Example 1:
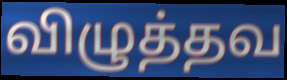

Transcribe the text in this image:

விழுத்தவ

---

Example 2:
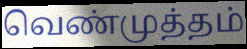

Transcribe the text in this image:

வெண்முத்தம்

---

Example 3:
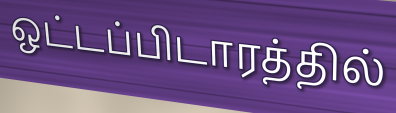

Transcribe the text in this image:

ஒட்டப்பிடாரத்தில்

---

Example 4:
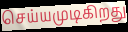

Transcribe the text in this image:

செய்யமுடிகிறது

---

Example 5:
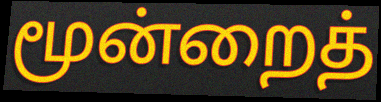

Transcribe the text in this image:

மூன்றைத்